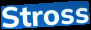
Stross